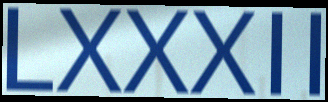
LXXXII